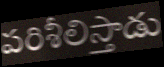
పరిశీలిస్తాడు